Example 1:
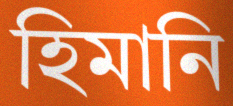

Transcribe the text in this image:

হিমানি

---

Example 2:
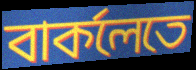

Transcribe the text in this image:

বার্কলেতে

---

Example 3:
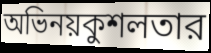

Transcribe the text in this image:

অভিনয়কুশলতার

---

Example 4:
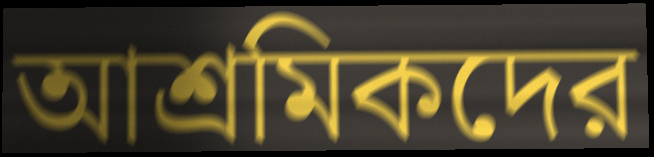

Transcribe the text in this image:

আশ্রমিকদের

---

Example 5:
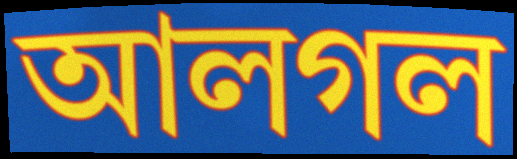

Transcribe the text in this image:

আলগল